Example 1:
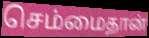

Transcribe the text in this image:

செம்மைதான்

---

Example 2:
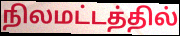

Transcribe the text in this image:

நிலமட்டத்தில்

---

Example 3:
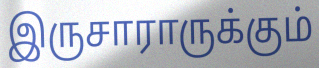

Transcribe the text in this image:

இருசாராருக்கும்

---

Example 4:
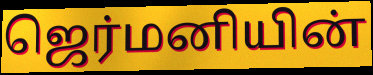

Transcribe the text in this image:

ஜெர்மனியின்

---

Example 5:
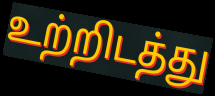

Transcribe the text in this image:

உற்றிடத்து